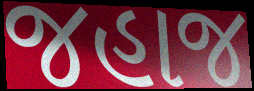
જહાજ